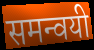
समन्वयी